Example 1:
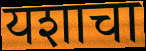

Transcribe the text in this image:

यशाचा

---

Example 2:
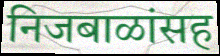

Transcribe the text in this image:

निजबाळांसह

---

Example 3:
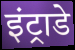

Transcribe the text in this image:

इंट्राडे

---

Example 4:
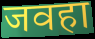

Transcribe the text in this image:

जवहा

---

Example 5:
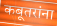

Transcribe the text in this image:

कबूतरांना